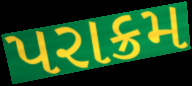
પરાક્રમ